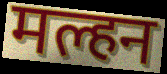
मल्हन